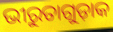
ଭୀରୁତାଗୁଡ଼ାକ